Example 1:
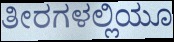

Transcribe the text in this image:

ತೀರಗಳಲ್ಲಿಯೂ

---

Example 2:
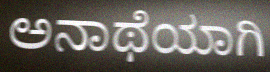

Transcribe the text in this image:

ಅನಾಥೆಯಾಗಿ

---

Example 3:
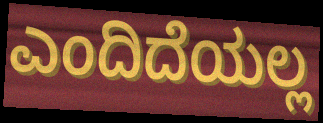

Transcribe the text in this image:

ಎಂದಿದೆಯಲ್ಲ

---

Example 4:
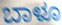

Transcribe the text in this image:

ಬಾಳೂ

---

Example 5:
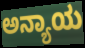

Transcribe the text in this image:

ಅನ್ಯಾಯ